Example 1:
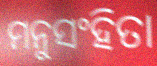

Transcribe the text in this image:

ମନୁସଂହିତା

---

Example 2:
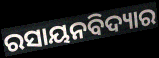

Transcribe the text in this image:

ରସାୟନବିଦ୍ୟାର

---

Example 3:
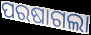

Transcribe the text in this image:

ପରଷାଗଲା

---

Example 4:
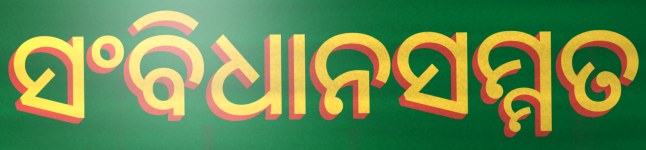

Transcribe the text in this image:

ସଂବିଧାନସମ୍ମତ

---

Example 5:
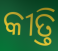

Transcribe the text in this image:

କୀତ୍ତି